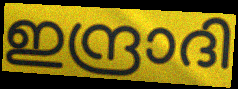
ഇന്ദ്രാദി